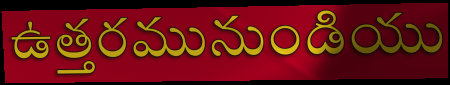
ఉత్తరమునుండియు